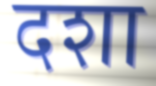
दशा